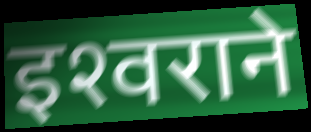
इश्वराने